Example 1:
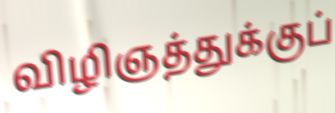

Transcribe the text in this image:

விழிஞத்துக்குப்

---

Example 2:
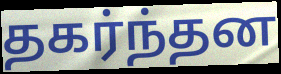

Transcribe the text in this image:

தகர்ந்தன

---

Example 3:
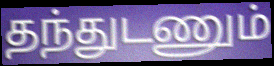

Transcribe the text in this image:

தந்துடணும்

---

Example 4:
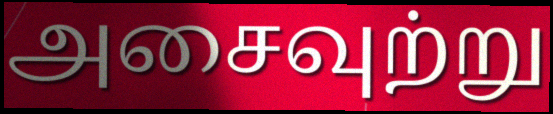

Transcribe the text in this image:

அசைவுற்று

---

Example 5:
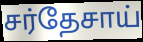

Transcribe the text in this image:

சர்தேசாய்